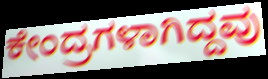
ಕೇಂದ್ರಗಳಾಗಿದ್ದವು